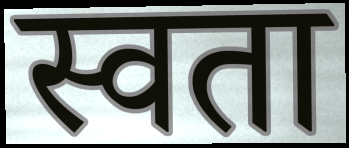
स्वता